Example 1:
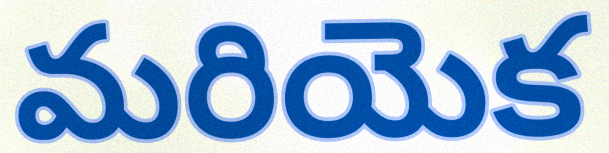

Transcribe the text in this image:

మరియెక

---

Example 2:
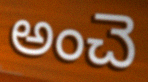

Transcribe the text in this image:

అంచె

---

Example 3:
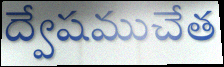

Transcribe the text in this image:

ద్వేషముచేత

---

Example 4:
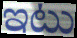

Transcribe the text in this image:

ఇటు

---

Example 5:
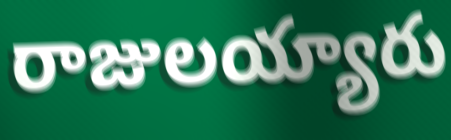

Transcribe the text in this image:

రాజులయ్యారు